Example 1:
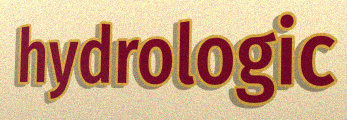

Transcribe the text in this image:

hydrologic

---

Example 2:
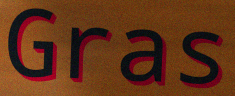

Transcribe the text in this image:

Gras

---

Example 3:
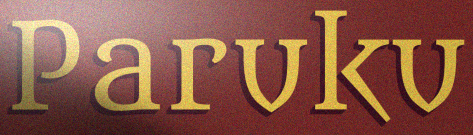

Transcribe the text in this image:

Paruku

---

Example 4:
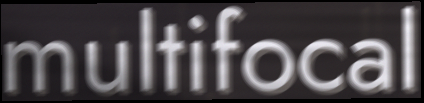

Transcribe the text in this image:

multifocal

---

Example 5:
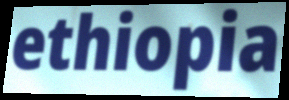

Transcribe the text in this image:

ethiopia